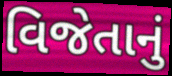
વિજેતાનું